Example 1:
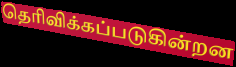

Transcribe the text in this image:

தெரிவிக்கப்படுகின்றன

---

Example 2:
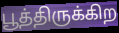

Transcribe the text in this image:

பூத்திருக்கிற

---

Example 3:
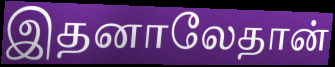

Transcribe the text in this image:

இதனாலேதான்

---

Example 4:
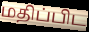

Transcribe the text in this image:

மதிப்பிட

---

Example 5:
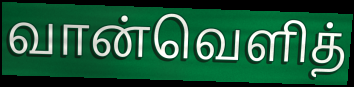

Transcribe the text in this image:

வான்வெளித்